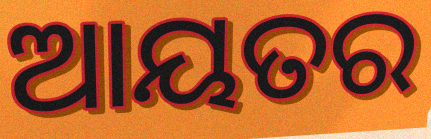
ଆୟତର